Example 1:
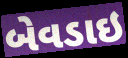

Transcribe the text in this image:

બેવડાઇ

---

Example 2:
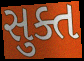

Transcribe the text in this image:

સુક્ત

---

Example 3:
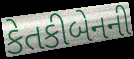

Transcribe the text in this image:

કેતકીબેનની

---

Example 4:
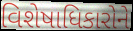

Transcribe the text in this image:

વિશેષાધિકારોને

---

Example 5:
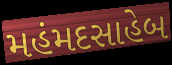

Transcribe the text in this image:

મહંમદસાહેબ